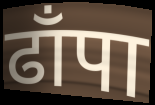
ढाँपा